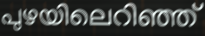
പുഴയിലെറിഞ്ഞ്